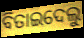
ବିତାଇଦେଲୁ